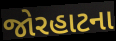
જોરહાટના